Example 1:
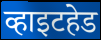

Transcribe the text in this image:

व्हाइटहेड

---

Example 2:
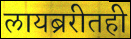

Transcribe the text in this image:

लायब्ररीतही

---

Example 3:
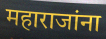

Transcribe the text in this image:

महाराजांना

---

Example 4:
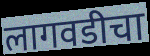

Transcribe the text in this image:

लागवडीचा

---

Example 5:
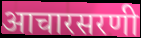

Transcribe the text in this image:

आचारसरणी